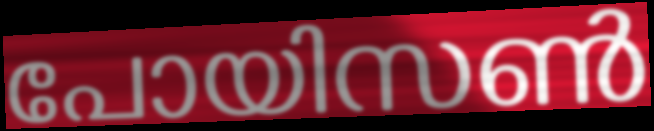
പോയിസൺ